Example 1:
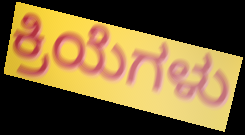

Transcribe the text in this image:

ಕ್ರಿಯೆಗಳು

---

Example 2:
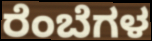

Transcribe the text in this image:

ರೆಂಬೆಗಳ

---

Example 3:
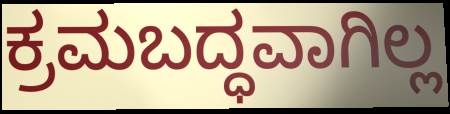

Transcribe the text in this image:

ಕ್ರಮಬದ್ಧವಾಗಿಲ್ಲ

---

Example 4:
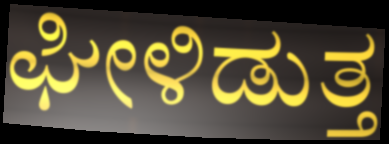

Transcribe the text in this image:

ಘೀಳಿಡುತ್ತ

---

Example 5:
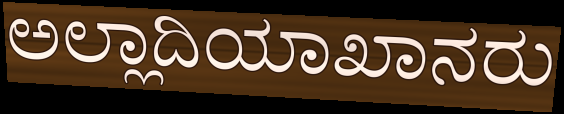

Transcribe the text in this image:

ಅಲ್ಲಾದಿಯಾಖಾನರು